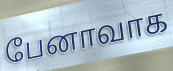
பேனாவாக